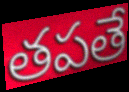
తపతే